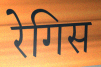
रेगिस